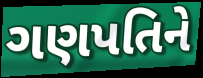
ગણપતિને